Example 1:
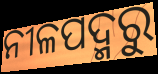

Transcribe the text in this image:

ନୀଳପଦ୍ମରୁ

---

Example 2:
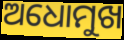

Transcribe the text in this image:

ଅଧୋମୁଖ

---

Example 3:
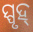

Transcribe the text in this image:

ସ୍ପୃହ୍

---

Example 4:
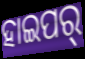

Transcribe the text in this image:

ହାଇପର୍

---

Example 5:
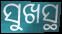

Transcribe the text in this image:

ସୁଖସ୍ଥ